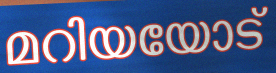
മറിയയോട്